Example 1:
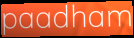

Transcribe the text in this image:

paadham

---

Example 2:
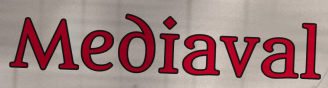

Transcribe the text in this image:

Mediaval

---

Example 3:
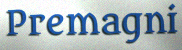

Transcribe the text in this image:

Premagni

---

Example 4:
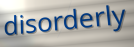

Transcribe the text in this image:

disorderly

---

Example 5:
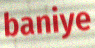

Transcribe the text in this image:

baniye